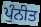
ਪੁੰਨੀਤ